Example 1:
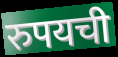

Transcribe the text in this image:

रुपयची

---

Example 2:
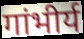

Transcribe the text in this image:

गांभीर्य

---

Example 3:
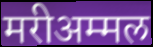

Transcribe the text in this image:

मरीअम्मल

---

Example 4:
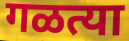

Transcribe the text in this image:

गळत्या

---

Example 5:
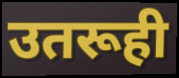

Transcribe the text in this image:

उतरूही